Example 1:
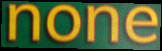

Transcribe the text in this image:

none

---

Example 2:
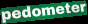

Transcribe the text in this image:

pedometer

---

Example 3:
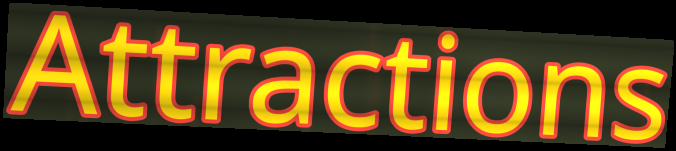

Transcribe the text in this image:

Attractions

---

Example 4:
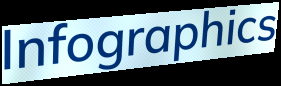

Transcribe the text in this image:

Infographics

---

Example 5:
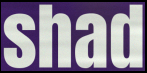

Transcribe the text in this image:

shad